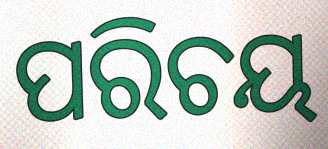
ପରିଚୟ